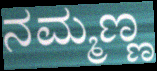
ನಮ್ಮಣ್ಣ